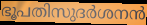
ഭൂപതിസുദർശനൻ